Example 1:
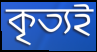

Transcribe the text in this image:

কৃত্যই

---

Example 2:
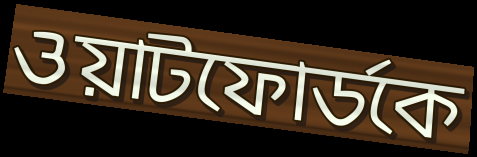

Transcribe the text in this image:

ওয়াটফোর্ডকে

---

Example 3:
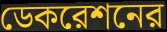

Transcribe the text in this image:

ডেকরেশনের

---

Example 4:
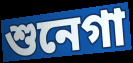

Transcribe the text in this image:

শুনেগা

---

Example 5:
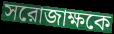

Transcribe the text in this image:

সরোজাক্ষকে